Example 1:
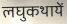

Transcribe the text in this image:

लघुकथायें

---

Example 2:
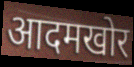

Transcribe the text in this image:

आदमखोर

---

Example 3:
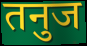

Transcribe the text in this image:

तनुज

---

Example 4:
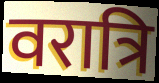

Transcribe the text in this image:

वरात्रि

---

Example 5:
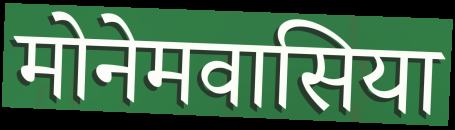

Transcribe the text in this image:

मोनेमवासिया